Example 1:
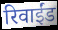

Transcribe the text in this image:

रिवाईंड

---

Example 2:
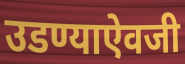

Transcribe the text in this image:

उडण्याऐवजी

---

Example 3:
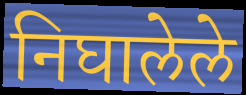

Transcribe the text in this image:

निघालेले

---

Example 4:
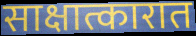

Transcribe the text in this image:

साक्षात्कारात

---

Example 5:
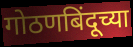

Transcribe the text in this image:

गोठणबिंदूच्या